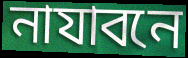
নাযাবনে